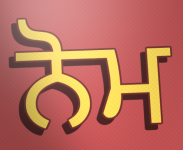
ਨੋਮ